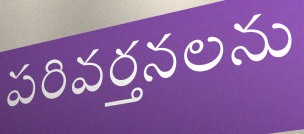
పరివర్తనలను